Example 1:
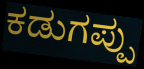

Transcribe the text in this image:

ಕಡುಗಪ್ಪು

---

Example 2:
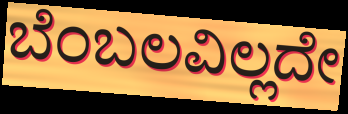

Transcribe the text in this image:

ಬೆಂಬಲವಿಲ್ಲದೇ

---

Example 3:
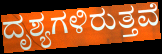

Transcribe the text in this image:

ದೃಶ್ಯಗಳಿರುತ್ತವೆ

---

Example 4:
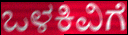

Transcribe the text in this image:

ಒಳಕಿವಿಗೆ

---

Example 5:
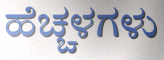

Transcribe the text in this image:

ಹೆಚ್ಚಳಗಳು